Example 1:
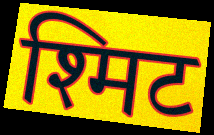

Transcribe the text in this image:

श्मिट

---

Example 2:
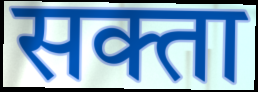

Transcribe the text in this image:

सक्‍ता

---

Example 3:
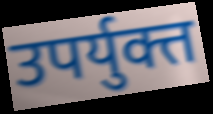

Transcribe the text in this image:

उपर्युक्त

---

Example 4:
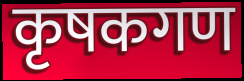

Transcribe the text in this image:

कृषकगण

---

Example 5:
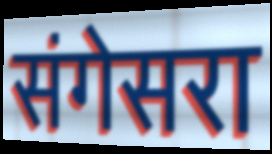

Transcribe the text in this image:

संगेसरा